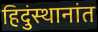
हिदुंस्थानांत